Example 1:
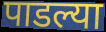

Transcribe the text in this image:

पाडल्या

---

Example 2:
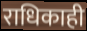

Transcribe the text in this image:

राधिकाही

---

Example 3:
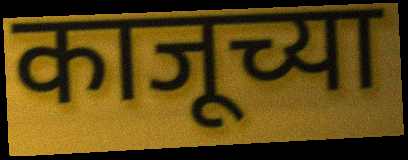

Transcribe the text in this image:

काजूच्या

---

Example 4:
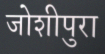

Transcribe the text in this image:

जोशीपुरा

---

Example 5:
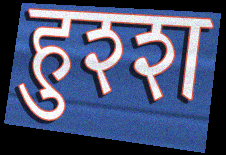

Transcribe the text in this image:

हुश्श